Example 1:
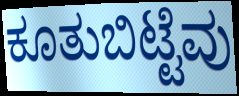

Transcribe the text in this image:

ಕೂತುಬಿಟ್ಟೆವು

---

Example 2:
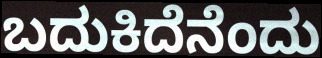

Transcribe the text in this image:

ಬದುಕಿದೆನೆಂದು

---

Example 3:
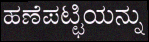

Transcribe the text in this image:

ಹಣೆಪಟ್ಟಿಯನ್ನು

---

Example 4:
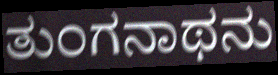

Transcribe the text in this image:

ತುಂಗನಾಥನು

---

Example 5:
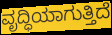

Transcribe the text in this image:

ವೃದ್ಧಿಯಾಗುತ್ತಿದೆ